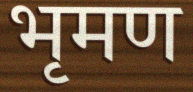
भृमण